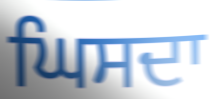
ਘਿਸਦਾ